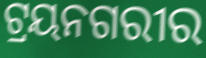
ଟ୍ରୟନଗରୀର